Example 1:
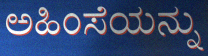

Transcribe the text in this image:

ಅಹಿಂಸೆಯನ್ನು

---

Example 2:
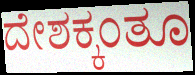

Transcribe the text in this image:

ದೇಶಕ್ಕಂತೂ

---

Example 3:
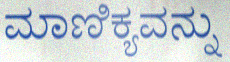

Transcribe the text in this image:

ಮಾಣಿಕ್ಯವನ್ನು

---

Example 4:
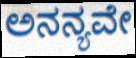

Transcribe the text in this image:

ಅನನ್ಯವೇ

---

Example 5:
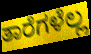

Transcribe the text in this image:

ತಾರೆಗಳೆಲ್ಲ